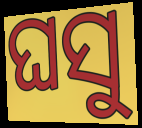
ଘସୁ